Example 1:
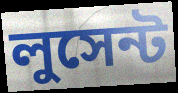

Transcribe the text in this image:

লুসেন্ট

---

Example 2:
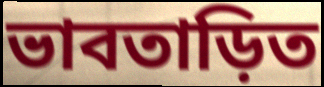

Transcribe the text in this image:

ভাবতাড়িত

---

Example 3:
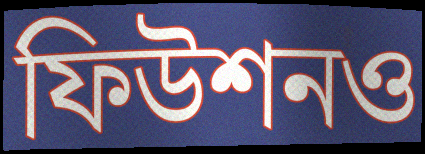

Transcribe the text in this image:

ফিউশনও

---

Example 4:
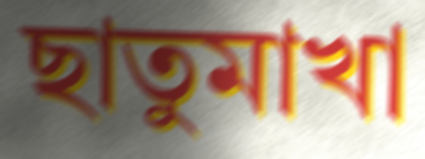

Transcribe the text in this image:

ছাতুমাখা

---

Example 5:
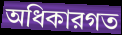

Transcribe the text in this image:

অধিকারগত